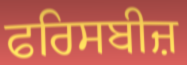
ਫਰਿਸਬੀਜ਼